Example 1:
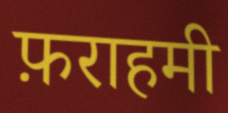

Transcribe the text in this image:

फ़राहमी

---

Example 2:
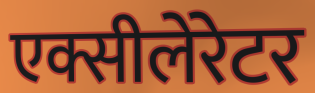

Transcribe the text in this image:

एक्सीलेरेटर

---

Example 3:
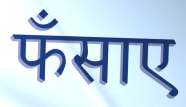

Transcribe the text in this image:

फँसाए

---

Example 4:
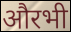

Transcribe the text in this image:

औरभी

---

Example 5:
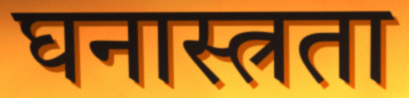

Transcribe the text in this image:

घनास्त्रता